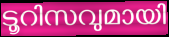
ടൂറിസവുമായി